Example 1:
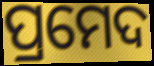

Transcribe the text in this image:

ପ୍ରମେଦ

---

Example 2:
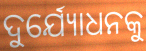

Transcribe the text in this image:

ଦୁର୍ଯ୍ୟୋଧନକୁ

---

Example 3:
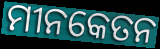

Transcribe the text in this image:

ମୀନକେତନ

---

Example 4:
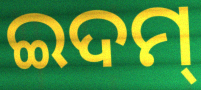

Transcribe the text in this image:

ଇଦମ୍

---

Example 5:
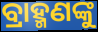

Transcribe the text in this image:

ବ୍ରାହ୍ମଣଙ୍କୁ